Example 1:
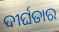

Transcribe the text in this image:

ଦୀର୍ଘତାର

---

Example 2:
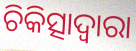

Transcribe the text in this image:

ଚିକିତ୍ସାଦ୍ଵାରା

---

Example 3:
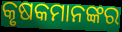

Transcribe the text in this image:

କୃଷକମାନଙ୍କର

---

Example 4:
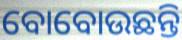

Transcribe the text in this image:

ବୋବୋଉଛନ୍ତି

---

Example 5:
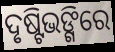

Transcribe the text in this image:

ଦୃଷ୍ଟିଭଙ୍ଗିରେ